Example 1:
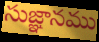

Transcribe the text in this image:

సుజ్ఞానము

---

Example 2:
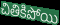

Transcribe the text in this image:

చితికిపోయి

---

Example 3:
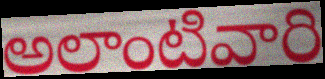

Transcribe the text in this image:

అలాంటివారి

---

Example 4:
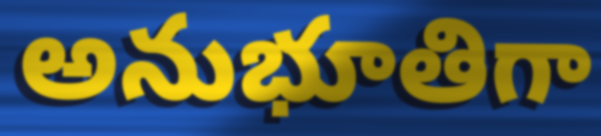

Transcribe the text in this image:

అనుభూతిగా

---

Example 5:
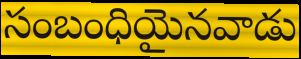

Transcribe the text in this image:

సంబంధియైనవాడు